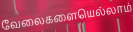
வேலைகளையெல்லாம்